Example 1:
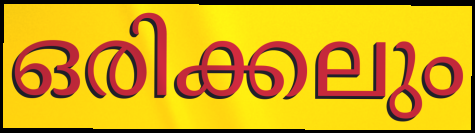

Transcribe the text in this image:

ഒരിക്കലും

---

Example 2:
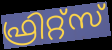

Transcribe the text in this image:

ഫ്രിറ്റ്സ്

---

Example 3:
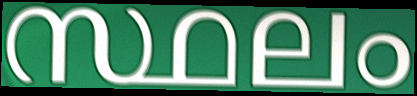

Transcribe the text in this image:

സ്ഥലം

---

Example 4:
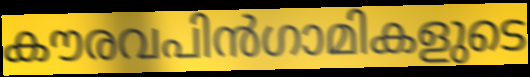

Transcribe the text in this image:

കൗരവപിൻഗാമികളുടെ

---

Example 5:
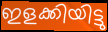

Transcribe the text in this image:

ഇളക്കിയിട്ടു